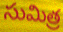
సుమిత్ర